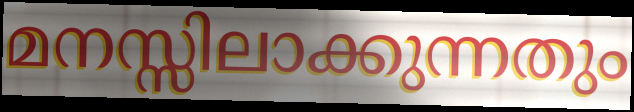
മനസ്സിലാക്കുന്നതും